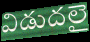
విడుదలై